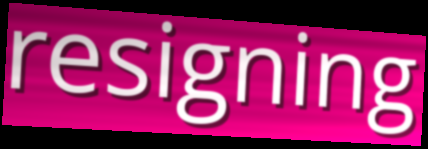
resigning